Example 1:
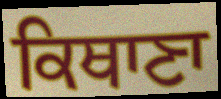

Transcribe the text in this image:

ਕਿਥਾਣਾ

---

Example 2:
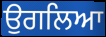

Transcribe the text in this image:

ਉਗਲਿਆ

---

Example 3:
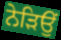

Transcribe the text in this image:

ਨੇੜਿਉਂ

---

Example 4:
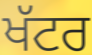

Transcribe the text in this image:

ਖੱਟਰ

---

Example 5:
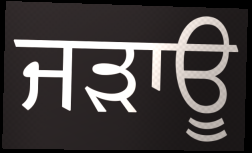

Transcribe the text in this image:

ਜੜਾਊ